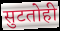
सुटतोही